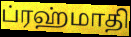
ப்ரஹ்மாதி